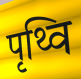
पृथ्वि